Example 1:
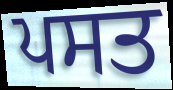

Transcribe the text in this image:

ਪਸਤ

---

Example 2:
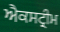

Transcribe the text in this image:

ਐਕਸਟ੍ਰੀਮ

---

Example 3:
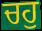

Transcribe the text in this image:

ਚਹੁ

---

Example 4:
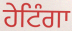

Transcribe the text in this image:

ਹੇਟਿੰਗਾ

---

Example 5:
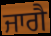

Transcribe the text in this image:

ਜਾਗੈ